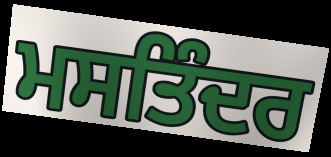
ਮਸਤਿੰਦਰ